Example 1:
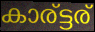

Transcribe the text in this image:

കാര്ട്ടര്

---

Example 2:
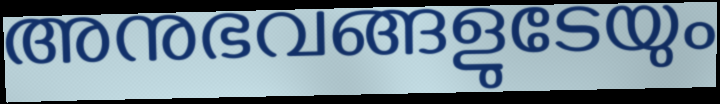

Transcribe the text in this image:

അനുഭവങ്ങളുടേയും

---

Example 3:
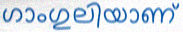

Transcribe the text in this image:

ഗാംഗുലിയാണ്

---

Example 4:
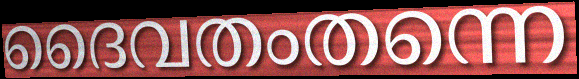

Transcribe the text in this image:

ദൈവതംതന്നെ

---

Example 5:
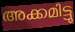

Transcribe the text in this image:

അക്കമിട്ടു